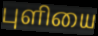
புளியை